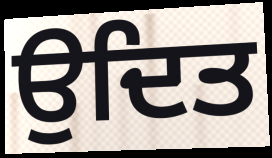
ਉਦਿਤ